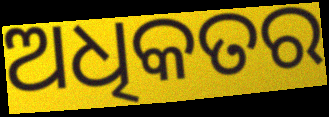
ଅଧିକତର